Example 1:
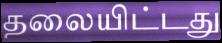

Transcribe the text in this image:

தலையிட்டது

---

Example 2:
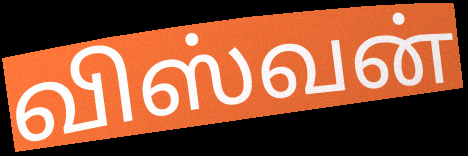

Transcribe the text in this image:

விஸ்வன்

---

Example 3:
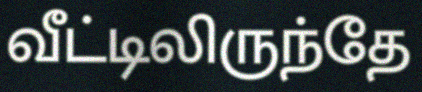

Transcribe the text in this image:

வீட்டிலிருந்தே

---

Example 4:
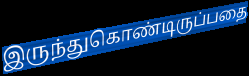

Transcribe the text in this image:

இருந்துகொண்டிருப்பதை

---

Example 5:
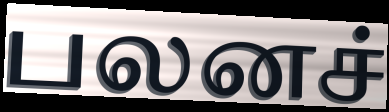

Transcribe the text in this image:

பலனச்